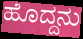
ಹೊದ್ದನು